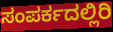
ಸಂಪರ್ಕದಲ್ಲಿರಿ